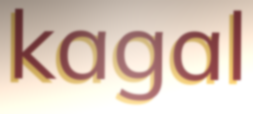
kagal